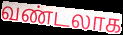
வண்டலாக